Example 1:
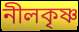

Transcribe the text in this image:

নীলকৃষ্ণ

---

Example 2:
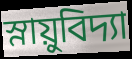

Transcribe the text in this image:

স্নায়ুবিদ্যা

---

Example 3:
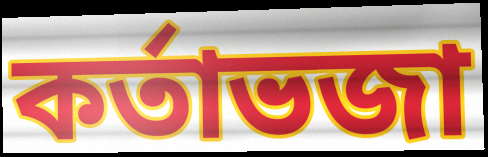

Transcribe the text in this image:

কর্তাভজা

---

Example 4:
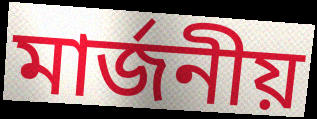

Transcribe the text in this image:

মার্জনীয়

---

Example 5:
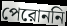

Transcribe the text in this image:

পেরোননি